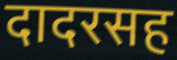
दादरसह